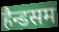
हैन्डसम